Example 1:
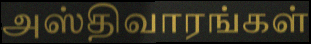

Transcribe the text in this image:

அஸ்திவாரங்கள்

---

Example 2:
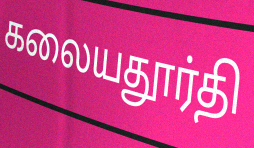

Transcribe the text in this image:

கலையதூர்தி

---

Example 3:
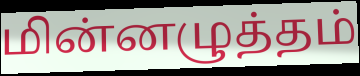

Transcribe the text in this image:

மின்னழுத்தம்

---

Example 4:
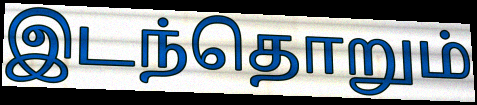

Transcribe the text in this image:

இடந்தொறும்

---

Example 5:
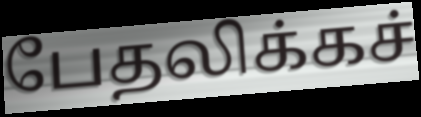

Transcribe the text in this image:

பேதலிக்கச்